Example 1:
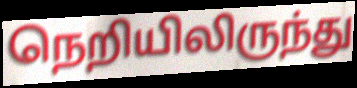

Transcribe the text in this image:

நெறியிலிருந்து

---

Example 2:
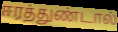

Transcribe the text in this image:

ஈரத்துண்டால்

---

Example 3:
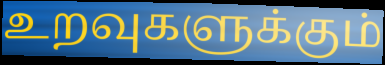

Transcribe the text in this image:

உறவுகளுக்கும்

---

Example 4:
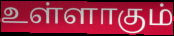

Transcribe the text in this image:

உள்ளாகும்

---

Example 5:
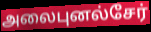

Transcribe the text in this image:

அலைபுனல்சேர்